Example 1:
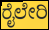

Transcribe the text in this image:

ರೈಲೇರಿ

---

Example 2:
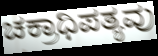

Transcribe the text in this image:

ಚಕ್ರಾಧಿಪತ್ಯವು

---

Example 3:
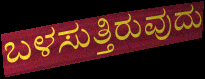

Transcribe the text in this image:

ಬಳಸುತ್ತಿರುವುದು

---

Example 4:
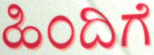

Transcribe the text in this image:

ಹಿಂದಿಗೆ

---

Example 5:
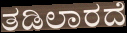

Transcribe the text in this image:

ತಡಿಲಾರದೆ